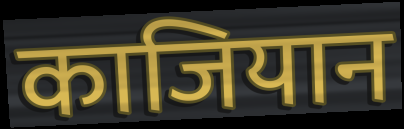
काजियान